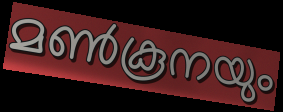
മൺകൂനയും